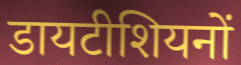
डायटीशियनों